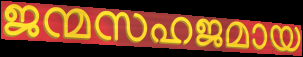
ജന്മസഹജമായ